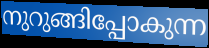
നുറുങ്ങിപ്പോകുന്ന